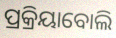
ପ୍ରକ୍ରିୟାବୋଲି